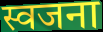
स्वजना